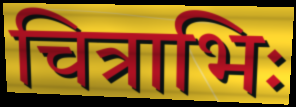
चित्राभिः